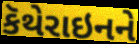
કૅથેરાઇનને